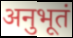
अनुभूतं